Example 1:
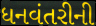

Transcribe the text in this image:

ધનવંતરીની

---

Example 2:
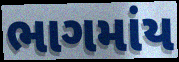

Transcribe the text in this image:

ભાગમાંય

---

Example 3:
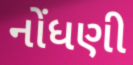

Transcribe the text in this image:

નોંધણી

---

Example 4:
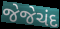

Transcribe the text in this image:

જેજેચંદ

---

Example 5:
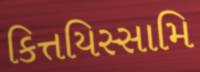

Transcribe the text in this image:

કિત્તયિસ્સામિ